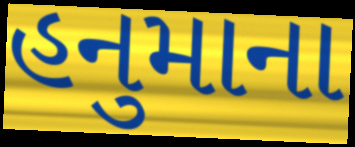
હનુમાના